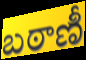
బఠాణీ